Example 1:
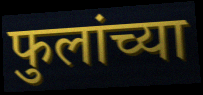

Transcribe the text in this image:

फुलांच्या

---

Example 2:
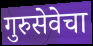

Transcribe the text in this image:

गुरुसेवेचा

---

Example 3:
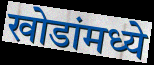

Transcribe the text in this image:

खोडांमध्ये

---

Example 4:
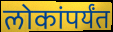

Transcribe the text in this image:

लोकांपर्यंत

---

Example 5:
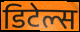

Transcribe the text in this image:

डिटेल्स